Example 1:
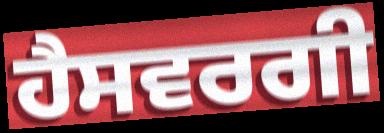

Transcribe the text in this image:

ਹੈਸਵਰਗੀ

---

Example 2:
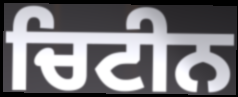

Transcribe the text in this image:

ਚਿਟੀਨ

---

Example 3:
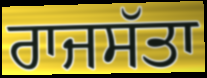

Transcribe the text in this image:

ਰਾਜਸੱਤਾ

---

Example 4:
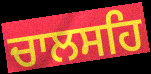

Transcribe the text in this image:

ਚਾਲਸਹਿ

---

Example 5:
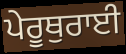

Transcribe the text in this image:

ਪੇਰੂਥੁਰਾਈ